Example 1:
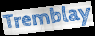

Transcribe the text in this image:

Tremblay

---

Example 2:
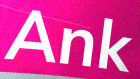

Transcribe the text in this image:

Ank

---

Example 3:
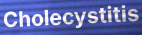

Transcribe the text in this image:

Cholecystitis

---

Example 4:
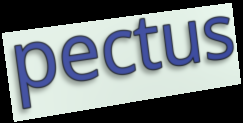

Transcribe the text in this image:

pectus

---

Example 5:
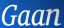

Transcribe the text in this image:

Gaan